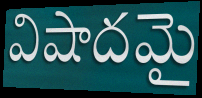
విషాదమై